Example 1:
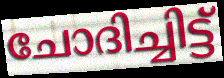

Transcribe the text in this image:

ചോദിച്ചിട്ട്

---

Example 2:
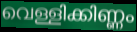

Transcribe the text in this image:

വെള്ളിക്കിണ്ണം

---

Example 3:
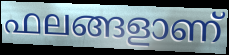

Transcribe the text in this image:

ഫലങ്ങളാണ്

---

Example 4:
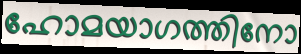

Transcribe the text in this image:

ഹോമയാഗത്തിനോ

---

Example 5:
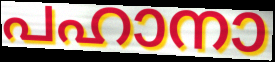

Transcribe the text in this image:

പഹാനാ